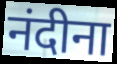
नंदीना